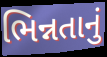
ભિન્નતાનું